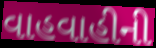
વાહવાહીની